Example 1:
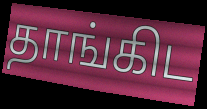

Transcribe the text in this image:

தாங்கிட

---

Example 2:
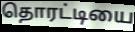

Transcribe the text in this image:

தொரட்டியை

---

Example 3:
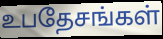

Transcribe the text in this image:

உபதேசங்கள்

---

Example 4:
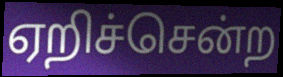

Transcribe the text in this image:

ஏறிச்சென்ற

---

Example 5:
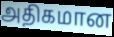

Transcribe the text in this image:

அதிகமான